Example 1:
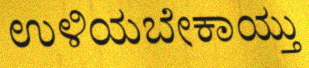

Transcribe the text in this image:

ಉಳಿಯಬೇಕಾಯ್ತು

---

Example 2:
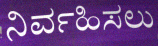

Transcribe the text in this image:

ನಿರ್ವಹಿಸಲು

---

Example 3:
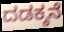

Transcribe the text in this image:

ದಡಕ್ಕನೆ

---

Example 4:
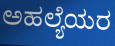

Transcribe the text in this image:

ಅಹಲ್ಯೆಯರ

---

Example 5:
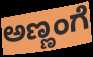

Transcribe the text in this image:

ಅಣ್ಣಂಗೆ